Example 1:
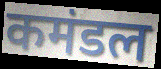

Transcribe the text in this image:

कमंडल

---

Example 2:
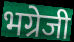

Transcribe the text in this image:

भग्रेजी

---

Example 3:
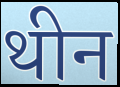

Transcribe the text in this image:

थीन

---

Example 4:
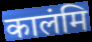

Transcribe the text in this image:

कालंमि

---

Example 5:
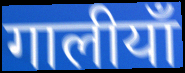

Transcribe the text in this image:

गालीयाँ